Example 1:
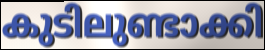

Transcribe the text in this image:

കുടിലുണ്ടാക്കി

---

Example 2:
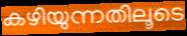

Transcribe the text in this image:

കഴിയുന്നതിലൂടെ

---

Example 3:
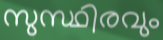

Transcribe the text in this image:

സുസ്ഥിരവും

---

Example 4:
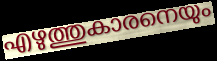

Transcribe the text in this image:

എഴുത്തുകാരനെയും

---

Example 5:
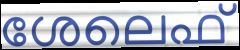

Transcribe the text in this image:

ശേലെഫ്